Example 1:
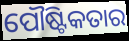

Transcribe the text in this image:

ପୌଷ୍ଟିକତାର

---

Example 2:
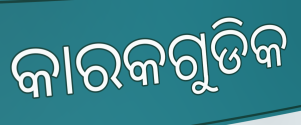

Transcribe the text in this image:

କାରକଗୁଡିକ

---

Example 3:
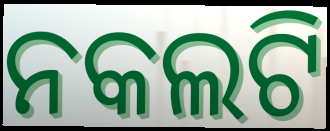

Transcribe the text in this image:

ନକଲଟି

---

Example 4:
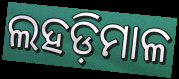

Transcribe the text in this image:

ଲହଡ଼ିମାଳ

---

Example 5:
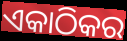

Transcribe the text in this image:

ଏକାଠିକର